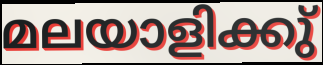
മലയാളിക്കു്